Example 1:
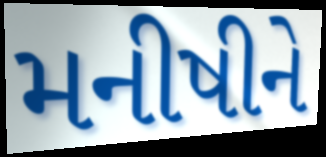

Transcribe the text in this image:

મનીષીને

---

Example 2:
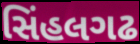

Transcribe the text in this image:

સિંહલગઢ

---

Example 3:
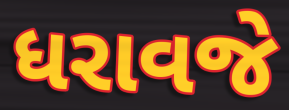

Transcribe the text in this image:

ધરાવજે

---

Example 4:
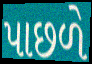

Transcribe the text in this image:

પાછળે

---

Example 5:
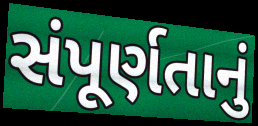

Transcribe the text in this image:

સંપૂર્ણતાનું